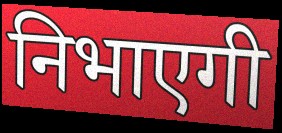
निभाएगी